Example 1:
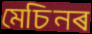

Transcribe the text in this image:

মেচিনৰ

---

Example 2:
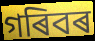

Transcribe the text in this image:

গৰিবৰ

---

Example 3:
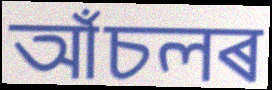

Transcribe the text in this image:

আঁচলৰ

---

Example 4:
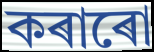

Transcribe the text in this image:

কৰাৰো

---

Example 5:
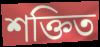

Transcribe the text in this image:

শক্তিত